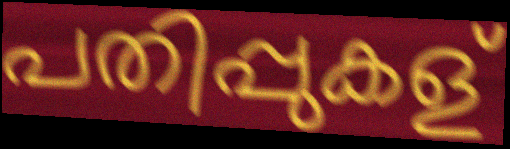
പതിപ്പുകള്